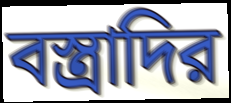
বস্ত্রাদির